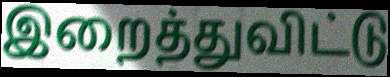
இறைத்துவிட்டு